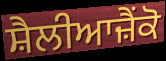
ਸ਼ੈਲੀਆਜ਼ੈਂਕੋ